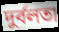
দুর্বলতা